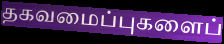
தகவமைப்புகளைப்